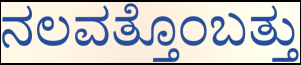
ನಲವತ್ತೊಂಬತ್ತು